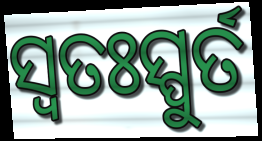
ସ୍ୱତଃସ୍ପୁର୍ତ